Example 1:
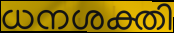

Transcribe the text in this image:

ധനശക്തി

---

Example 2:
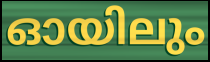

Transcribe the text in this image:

ഓയിലും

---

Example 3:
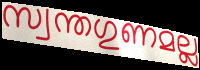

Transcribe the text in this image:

സ്വന്തഗുണമല്ല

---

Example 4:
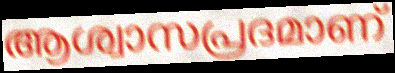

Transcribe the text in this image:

ആശ്വാസപ്രദമാണ്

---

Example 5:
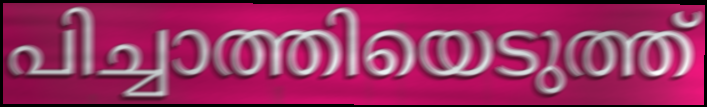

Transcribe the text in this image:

പിച്ചാത്തിയെടുത്ത്